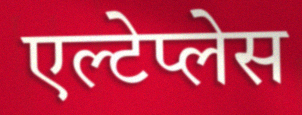
एल्टेप्लेस